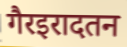
गैरइरादतन